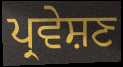
ਪ੍ਰਵੇਸ਼ਣ